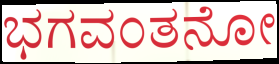
ಭಗವಂತನೋ